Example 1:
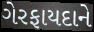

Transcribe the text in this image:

ગેરફાયદાને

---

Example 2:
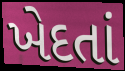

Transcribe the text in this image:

ખેદતાં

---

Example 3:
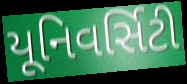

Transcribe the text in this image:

યૂનિવર્સિટી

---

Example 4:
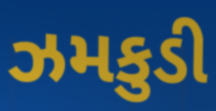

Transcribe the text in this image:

ઝમકુડી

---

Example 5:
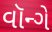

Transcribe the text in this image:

વૉન્ગે